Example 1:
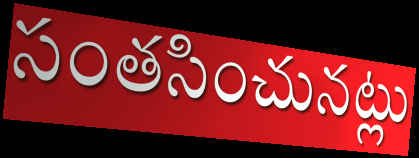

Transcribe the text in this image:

సంతసించునట్లు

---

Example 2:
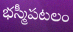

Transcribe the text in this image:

భస్మీపటలం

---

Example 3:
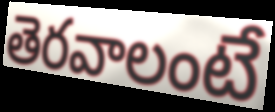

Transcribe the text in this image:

తెరవాలంటే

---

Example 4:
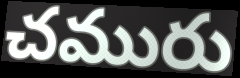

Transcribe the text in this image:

చమురు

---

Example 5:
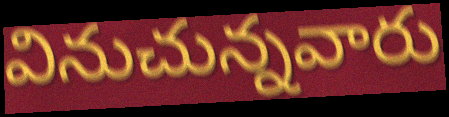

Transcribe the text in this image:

వినుచున్నవారు